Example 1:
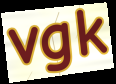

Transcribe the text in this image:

vgk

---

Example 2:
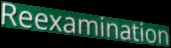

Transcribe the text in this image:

Reexamination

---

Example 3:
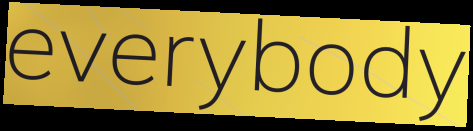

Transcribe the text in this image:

everybody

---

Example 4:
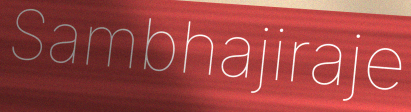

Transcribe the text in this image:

Sambhajiraje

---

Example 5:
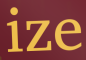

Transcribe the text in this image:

ize